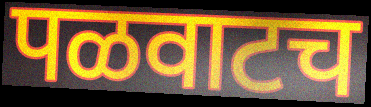
पळवाटच